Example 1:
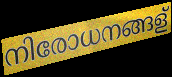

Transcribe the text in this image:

നിരോധനങ്ങള്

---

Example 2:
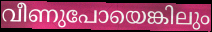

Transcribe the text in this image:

വീണുപോയെങ്കിലും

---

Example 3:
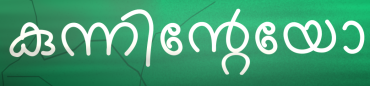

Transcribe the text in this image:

കുന്നിന്റേയോ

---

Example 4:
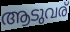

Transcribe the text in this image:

ആടുവര്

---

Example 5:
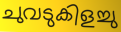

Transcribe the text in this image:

ചുവടുകിളച്ചു